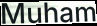
Muham